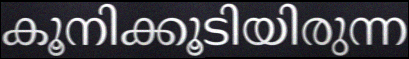
കൂനിക്കൂടിയിരുന്ന